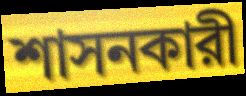
শাসনকারী